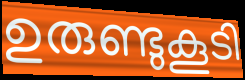
ഉരുണ്ടുകൂടി